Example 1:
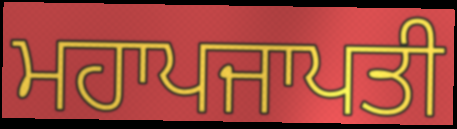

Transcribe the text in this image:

ਮਹਾਪਜਾਪਤੀ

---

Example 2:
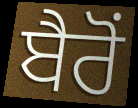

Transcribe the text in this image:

ਬੈਰੋਂ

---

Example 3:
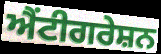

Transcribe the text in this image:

ਐਂਟੀਗਰੇਸ਼ਨ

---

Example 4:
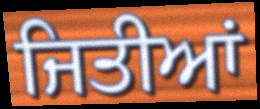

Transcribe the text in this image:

ਜਿਤੀਆਂ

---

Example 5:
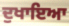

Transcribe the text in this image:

ਦੁਖਾਇਆ